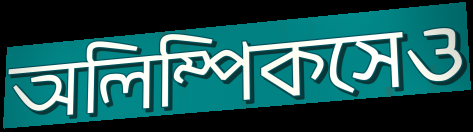
অলিম্পিকসেও